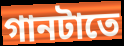
গানটাতে